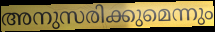
അനുസരിക്കുമെന്നും